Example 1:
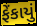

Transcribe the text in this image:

ફેંકાયું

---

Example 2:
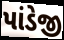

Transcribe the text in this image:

પાંડેજી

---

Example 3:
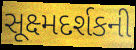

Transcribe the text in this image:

સૂક્ષ્મદર્શકની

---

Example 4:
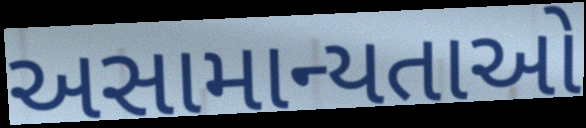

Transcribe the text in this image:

અસામાન્યતાઓ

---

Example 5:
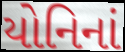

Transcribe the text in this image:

યોનિનાં